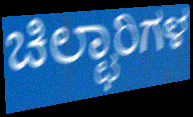
ಚಿಲ್ಟಾರಿಗಳ